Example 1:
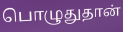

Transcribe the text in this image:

பொழுதுதான்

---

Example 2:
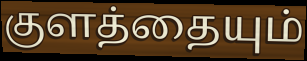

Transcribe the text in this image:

குளத்தையும்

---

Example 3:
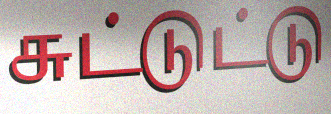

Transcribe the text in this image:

சுட்டுட்டு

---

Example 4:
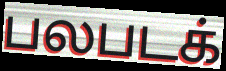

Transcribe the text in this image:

பலபடக்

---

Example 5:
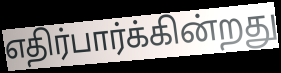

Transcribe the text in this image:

எதிர்பார்க்கின்றது